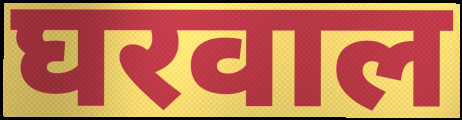
घरवाल